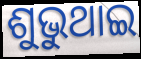
ଶୁଭୁଥାଇ